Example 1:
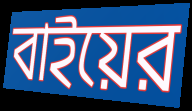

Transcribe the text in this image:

বাইয়ের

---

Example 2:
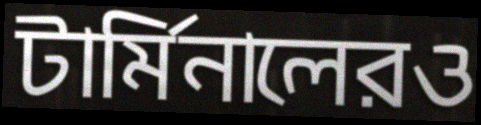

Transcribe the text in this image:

টার্মিনালেরও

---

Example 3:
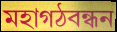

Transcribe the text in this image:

মহাগঠবন্ধন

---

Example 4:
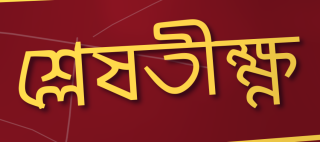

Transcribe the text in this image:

শ্লেষতীক্ষ্ণ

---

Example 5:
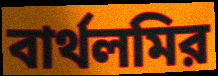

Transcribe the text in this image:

বার্থলমির